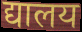
द्यालय